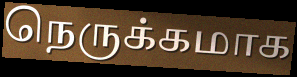
நெருக்கமாக